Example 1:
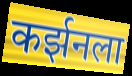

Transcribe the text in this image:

कर्झनला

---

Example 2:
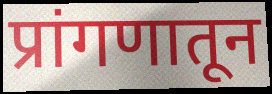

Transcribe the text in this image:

प्रांगणातून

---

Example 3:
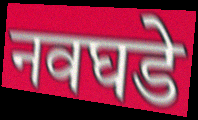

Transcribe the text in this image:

नवघडे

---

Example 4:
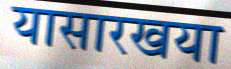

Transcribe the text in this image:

यासारखया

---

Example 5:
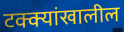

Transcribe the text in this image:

टक्क्यांखालील